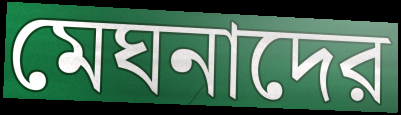
মেঘনাদের